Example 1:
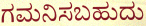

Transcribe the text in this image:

ಗಮನಿಸಬಹುದು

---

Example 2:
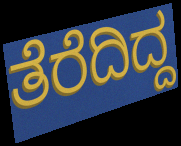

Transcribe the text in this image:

ತೆರೆದಿದ್ದ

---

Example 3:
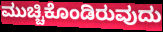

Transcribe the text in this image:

ಮುಚ್ಚಿಕೊಂಡಿರುವುದು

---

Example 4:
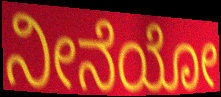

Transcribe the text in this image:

ನೀನೆಯೋ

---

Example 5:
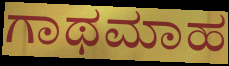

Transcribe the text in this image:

ಗಾಥಮಾಹ